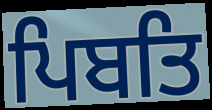
ਪਿਬਤਿ